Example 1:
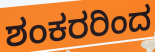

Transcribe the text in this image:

ಶಂಕರರಿಂದ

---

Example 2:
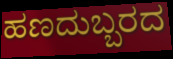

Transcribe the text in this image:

ಹಣದುಬ್ಬರದ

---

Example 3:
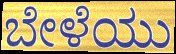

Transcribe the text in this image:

ಬೇಳೆಯು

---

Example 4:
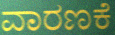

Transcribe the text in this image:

ವಾರಣಕೆ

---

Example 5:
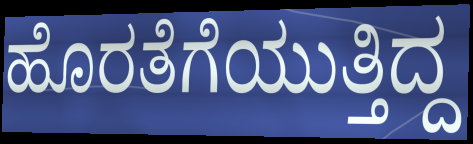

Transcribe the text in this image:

ಹೊರತೆಗೆಯುತ್ತಿದ್ದ